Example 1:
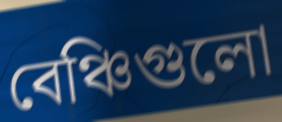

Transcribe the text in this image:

বেঞ্চিগুলো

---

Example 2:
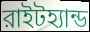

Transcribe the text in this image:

রাইটহ্যান্ড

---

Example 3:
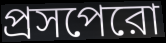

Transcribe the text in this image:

প্রসপেরো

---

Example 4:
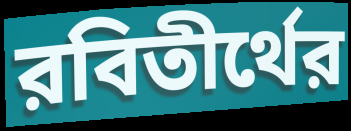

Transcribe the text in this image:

রবিতীর্থের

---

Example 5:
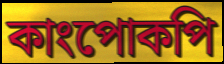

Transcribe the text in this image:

কাংপোকপি